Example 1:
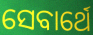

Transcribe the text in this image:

ସେବାର୍ଥେ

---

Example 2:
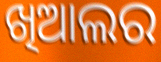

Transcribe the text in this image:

ଖିଆଲର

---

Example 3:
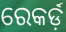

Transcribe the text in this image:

ରେକର୍ଡ଼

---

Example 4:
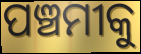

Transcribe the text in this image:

ପଞ୍ଚମୀକୁ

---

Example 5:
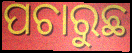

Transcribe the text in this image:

ପଚାରୁଛ